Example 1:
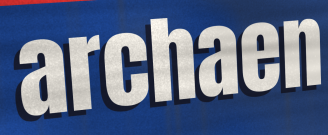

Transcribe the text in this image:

archaen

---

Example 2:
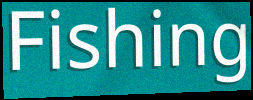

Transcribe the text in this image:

Fishing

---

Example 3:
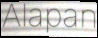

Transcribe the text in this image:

Alapan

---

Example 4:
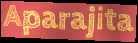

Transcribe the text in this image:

Aparajita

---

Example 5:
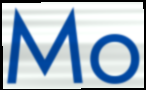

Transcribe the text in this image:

Mo